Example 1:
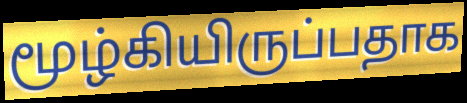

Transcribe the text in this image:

மூழ்கியிருப்பதாக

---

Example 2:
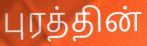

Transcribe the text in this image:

புரத்தின்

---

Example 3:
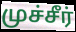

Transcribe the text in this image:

முச்சீர்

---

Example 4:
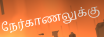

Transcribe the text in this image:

நேர்காணலுக்கு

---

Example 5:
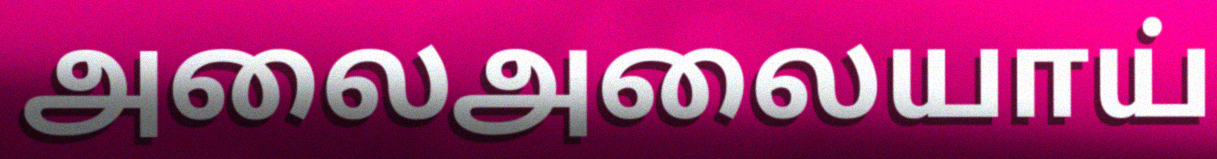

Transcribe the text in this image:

அலைஅலையாய்